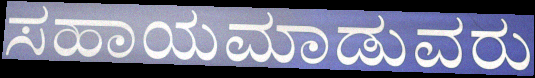
ಸಹಾಯಮಾಡುವರು